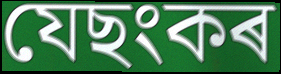
যেছংকৰ